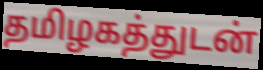
தமிழகத்துடன்